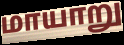
மாயாறு